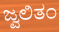
ಜ್ವಲಿತಂ